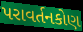
પરાવર્તનકોણ